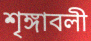
শৃঙ্গাবলী